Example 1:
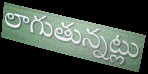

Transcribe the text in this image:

లాగుతున్నట్లు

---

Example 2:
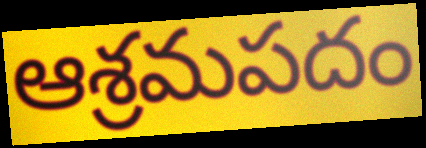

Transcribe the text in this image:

ఆశ్రమపదం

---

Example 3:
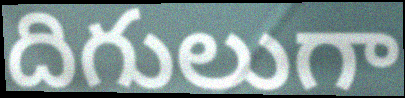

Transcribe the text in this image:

దిగులుగా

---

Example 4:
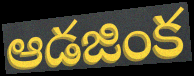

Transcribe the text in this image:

ఆడజింక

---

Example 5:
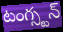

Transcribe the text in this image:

టంగ్స్టన్